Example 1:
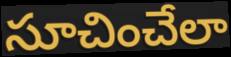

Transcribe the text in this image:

సూచించేలా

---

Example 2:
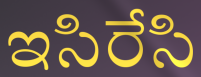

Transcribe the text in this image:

ఇసిరేసి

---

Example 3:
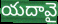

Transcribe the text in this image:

యదావై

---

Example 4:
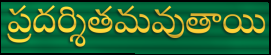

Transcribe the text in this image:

ప్రదర్శితమవుతాయి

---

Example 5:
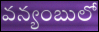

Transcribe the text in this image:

వన్యంబులో